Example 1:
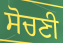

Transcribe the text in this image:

ਸੋਚਣੀ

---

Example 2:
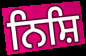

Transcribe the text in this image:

ਨਿਸ਼ਿ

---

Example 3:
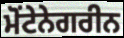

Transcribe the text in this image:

ਮੋਂਟੇਨੇਗਰੀਨ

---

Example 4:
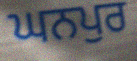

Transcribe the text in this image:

ਘਨਪੁਰ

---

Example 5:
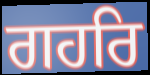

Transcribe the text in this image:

ਗਹਰਿ